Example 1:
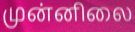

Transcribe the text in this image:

முன்னிலை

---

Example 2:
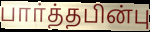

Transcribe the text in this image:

பார்த்தபின்பு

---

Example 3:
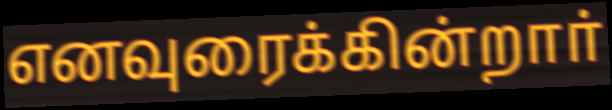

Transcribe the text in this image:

எனவுரைக்கின்றார்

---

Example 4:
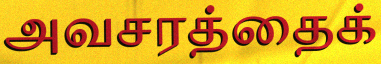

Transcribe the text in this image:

அவசரத்தைக்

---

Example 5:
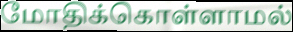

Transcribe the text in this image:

மோதிக்கொள்ளாமல்